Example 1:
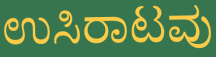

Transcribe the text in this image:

ಉಸಿರಾಟವು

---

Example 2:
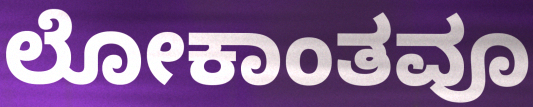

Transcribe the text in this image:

ಲೋಕಾಂತವೂ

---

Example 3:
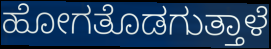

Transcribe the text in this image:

ಹೋಗತೊಡಗುತ್ತಾಳೆ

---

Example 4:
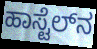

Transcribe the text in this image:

ಹಾಸ್ಟೆಲ್‌ನ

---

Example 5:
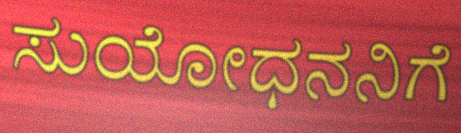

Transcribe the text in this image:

ಸುಯೋಧನನಿಗೆ